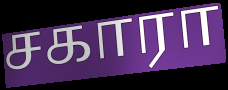
சகாரா